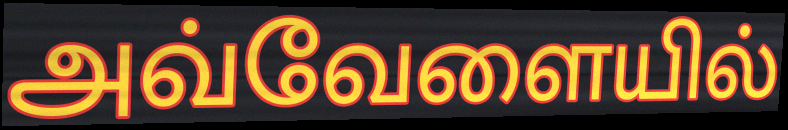
அவ்வேளையில்